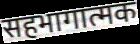
सहभागात्मक